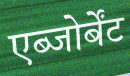
एब्जोर्बेंट